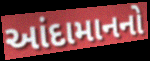
આંદામાનનો